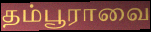
தம்பூராவை